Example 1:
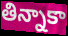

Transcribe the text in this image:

తిన్నాకా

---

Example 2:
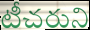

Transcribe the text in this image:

టీచరుని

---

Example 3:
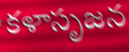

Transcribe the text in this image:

కళాసృజన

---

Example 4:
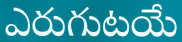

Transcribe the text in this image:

ఎరుగుటయే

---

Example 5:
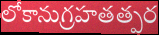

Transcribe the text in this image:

లోకానుగ్రహతత్పర